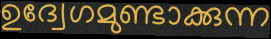
ഉദ്വേഗമുണ്ടാക്കുന്ന